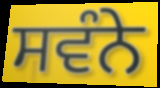
ਸਵੰਨੇ